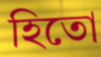
হিতো